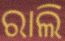
ରାଲି